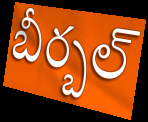
బీర్బల్